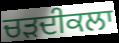
ਚੜਦੀਕਲਾ